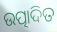
ଉତ୍ପାଦିତ